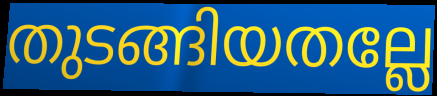
തുടങ്ങിയതല്ലേ